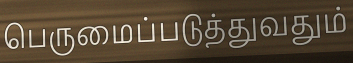
பெருமைப்படுத்துவதும்